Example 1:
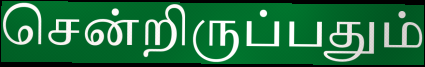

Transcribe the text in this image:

சென்றிருப்பதும்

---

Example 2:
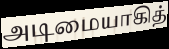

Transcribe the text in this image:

அடிமையாகித்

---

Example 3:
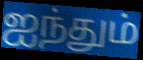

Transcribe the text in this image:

ஐந்தும்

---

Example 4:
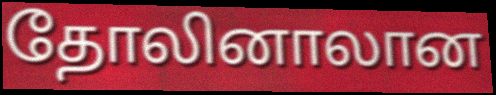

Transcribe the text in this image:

தோலினாலான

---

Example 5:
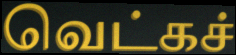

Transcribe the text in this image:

வெட்கச்